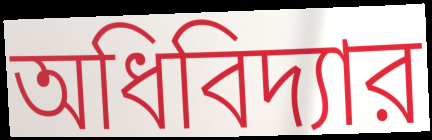
অধিবিদ্যার